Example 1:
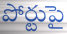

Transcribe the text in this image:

పోర్టుపై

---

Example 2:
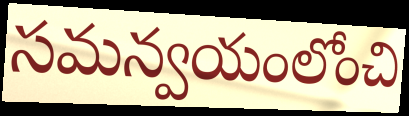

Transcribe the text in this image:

సమన్వయంలోంచి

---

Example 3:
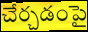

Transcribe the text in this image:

చేర్చడంపై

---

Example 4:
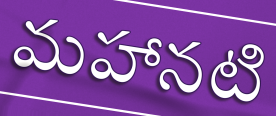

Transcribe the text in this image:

మహానటి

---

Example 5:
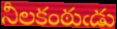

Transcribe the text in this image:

నీలకంఠుఁడు